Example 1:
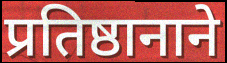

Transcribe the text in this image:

प्रतिष्ठानाने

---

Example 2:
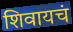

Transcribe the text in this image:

शिवायचं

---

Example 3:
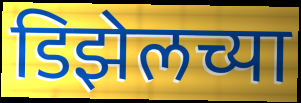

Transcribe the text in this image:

डिझेलच्या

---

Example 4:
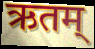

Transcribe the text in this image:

ऋतम्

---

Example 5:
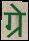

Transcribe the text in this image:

ग्रे